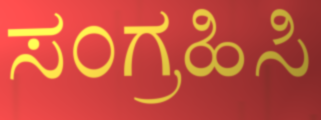
ಸಂಗ್ರಹಿಸಿ